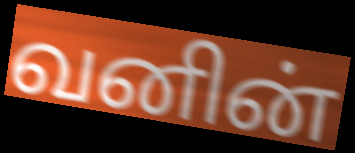
வனின்